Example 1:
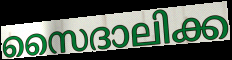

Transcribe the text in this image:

സൈദാലിക്ക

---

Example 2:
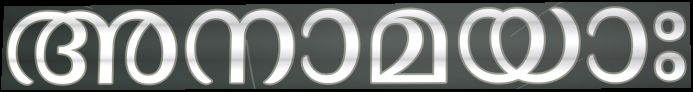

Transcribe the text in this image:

അനാമയാഃ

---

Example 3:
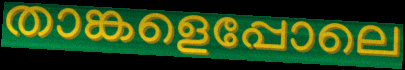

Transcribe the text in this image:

താങ്കളെപ്പോലെ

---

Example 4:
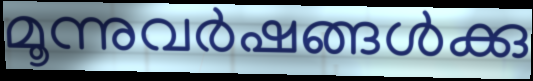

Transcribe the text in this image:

മൂന്നുവർഷങ്ങൾക്കു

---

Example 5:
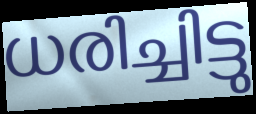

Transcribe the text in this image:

ധരിച്ചിട്ടു